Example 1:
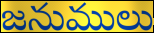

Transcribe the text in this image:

జనుములు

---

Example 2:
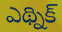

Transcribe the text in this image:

ఎథ్నిక్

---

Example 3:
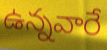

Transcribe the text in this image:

ఉన్నవారే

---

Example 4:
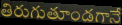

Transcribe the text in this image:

తిరుగుతూండగానే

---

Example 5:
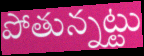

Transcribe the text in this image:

పోతున్నట్టు